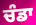
ਚੰਡਾ